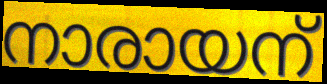
നാരായന്